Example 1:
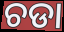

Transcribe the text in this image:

ଚଡା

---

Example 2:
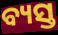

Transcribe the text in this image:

ବ୍ୟସ୍ତ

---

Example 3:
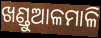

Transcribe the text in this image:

ଖଣ୍ଡୁଆଳମାଳି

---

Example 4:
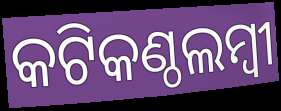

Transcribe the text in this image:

କଟିକଣ୍ଠଲମ୍ବୀ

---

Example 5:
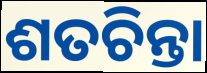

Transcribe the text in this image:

ଶତଚିନ୍ତା